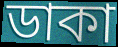
ডাকা